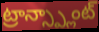
ట్రాన్స్ప్లాంట్